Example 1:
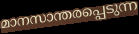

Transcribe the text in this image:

മാനസാന്തരപ്പെടുന്ന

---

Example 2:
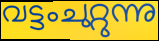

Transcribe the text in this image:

വട്ടംചുറ്റുന്നു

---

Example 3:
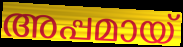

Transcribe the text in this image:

അപ്പമായ്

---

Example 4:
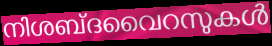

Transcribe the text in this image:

നിശബ്‌ദവൈറസുകൾ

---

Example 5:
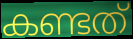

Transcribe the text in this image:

കണ്ടത്